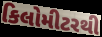
કિલોમીટરથી